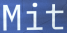
Mit